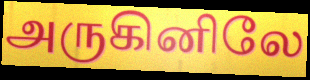
அருகினிலே